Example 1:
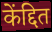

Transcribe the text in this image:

केंद्दित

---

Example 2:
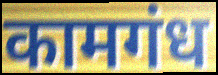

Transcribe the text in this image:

कामगंध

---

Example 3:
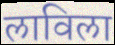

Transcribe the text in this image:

लाविला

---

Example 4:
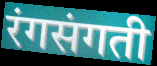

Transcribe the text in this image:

रंगसंगती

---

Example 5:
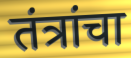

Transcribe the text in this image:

तंत्रांचा